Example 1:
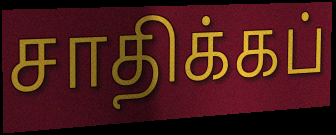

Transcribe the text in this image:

சாதிக்கப்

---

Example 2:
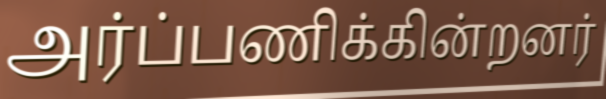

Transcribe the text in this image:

அர்ப்பணிக்கின்றனர்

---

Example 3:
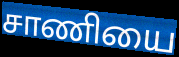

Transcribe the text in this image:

சாணியை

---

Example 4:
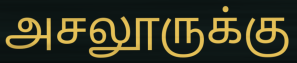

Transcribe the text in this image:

அசலூருக்கு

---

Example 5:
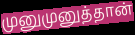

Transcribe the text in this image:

முனுமுனுத்தான்